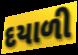
દયાળી